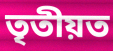
তৃতীয়ত